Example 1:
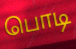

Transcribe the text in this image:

பொடி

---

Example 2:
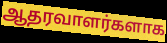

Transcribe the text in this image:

ஆதரவாளர்களாக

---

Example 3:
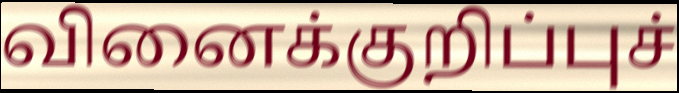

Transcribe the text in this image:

வினைக்குறிப்புச்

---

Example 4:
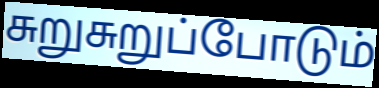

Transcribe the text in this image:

சுறுசுறுப்போடும்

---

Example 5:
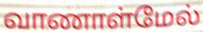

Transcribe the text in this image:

வாணாள்மேல்